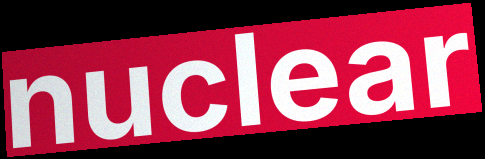
nuclear